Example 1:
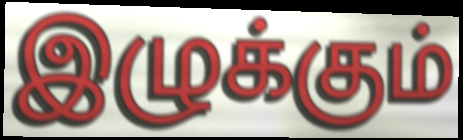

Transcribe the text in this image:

இழுக்கும்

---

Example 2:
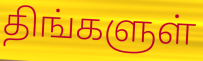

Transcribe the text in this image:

திங்களுள்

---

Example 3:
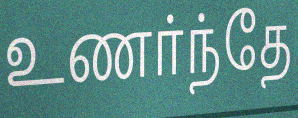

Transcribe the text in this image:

உணர்ந்தே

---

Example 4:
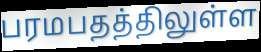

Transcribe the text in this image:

பரமபதத்திலுள்ள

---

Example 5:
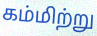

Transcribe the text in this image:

கம்மிற்று